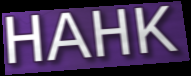
HAHK